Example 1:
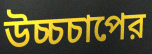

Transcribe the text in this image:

উচ্চচাপের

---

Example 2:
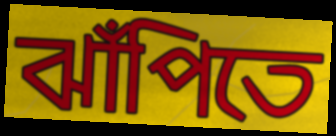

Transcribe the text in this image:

ঝাঁপিতে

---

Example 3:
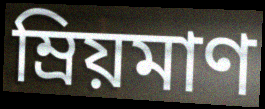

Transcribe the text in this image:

ম্রিয়মাণ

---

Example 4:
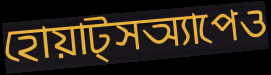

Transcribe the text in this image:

হোয়াট্‌সঅ্যাপেও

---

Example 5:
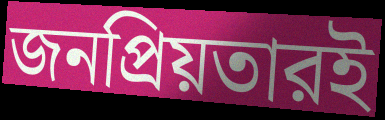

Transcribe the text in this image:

জনপ্রিয়তারই